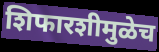
शिफारशीमुळेच